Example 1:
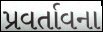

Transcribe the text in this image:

પ્રવર્તાવના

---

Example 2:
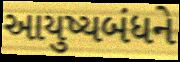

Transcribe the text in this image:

આયુષ્યબંધને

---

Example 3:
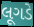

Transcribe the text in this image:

લૂગડે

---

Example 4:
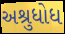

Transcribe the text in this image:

અશ્રુધોધ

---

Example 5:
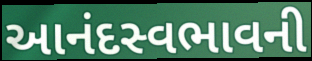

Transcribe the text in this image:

આનંદસ્વભાવની